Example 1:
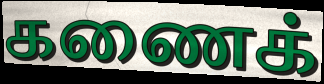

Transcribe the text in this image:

கணைக்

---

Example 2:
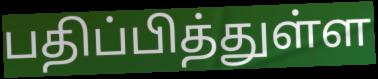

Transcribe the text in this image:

பதிப்பித்துள்ள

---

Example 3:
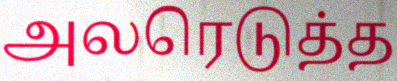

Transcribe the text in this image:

அலரெடுத்த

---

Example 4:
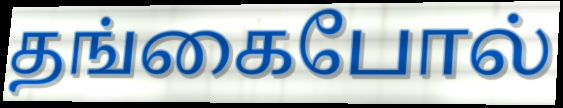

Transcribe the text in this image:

தங்கைபோல்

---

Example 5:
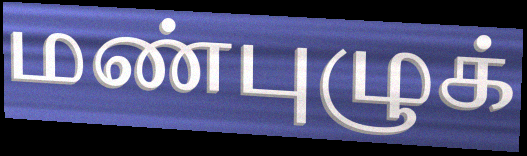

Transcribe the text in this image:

மண்புழுக்